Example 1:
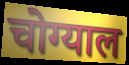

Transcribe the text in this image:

चोग्याल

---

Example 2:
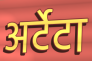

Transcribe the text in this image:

अर्टेटा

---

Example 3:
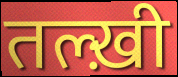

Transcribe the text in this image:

तल्ख़ी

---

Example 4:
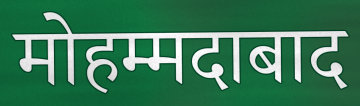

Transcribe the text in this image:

मोहम्मदाबाद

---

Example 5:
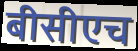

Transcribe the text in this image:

बीसीएच